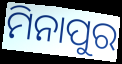
ମିନାପୁର